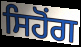
ਸਿਹੋਂਗ